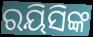
ରୟିସିଙ୍କ